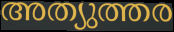
അത്യുത്തര